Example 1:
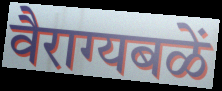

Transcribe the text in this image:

वैराग्यबळें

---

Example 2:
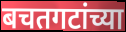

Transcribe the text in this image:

बचतगटांच्या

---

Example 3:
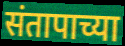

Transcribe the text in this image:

संतापाच्या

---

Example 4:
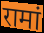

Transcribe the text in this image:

रामां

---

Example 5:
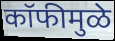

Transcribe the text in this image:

कॉफीमुळे